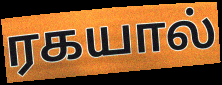
ரகயால்